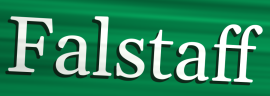
Falstaff